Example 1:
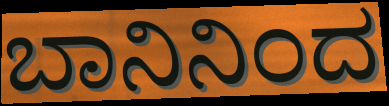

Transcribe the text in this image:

ಬಾನಿನಿಂದ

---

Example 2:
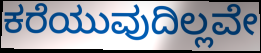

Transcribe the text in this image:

ಕರೆಯುವುದಿಲ್ಲವೇ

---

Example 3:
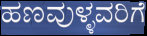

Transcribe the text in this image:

ಹಣವುಳ್ಳವರಿಗೆ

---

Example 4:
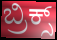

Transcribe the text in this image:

ಬ್ರಿಕ್ಸ್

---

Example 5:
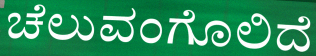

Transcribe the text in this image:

ಚೆಲುವಂಗೊಲಿದೆ